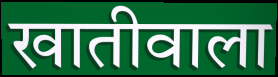
खातीवाला